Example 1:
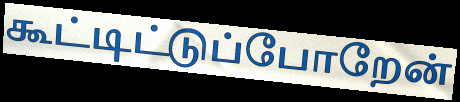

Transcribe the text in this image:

கூட்டிட்டுப்போறேன்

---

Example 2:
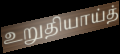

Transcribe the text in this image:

உறுதியாய்த்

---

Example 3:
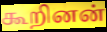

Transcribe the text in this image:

கூறினன்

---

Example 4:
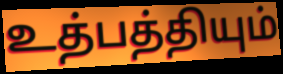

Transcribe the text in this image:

உத்பத்தியும்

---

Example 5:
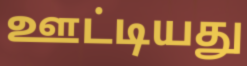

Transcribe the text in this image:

ஊட்டியது